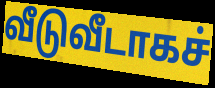
வீடுவீடாகச்